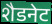
शैडनेट